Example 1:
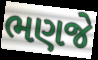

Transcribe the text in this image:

ભણજે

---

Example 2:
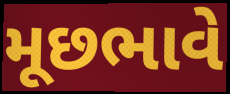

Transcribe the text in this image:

મૂછભાવે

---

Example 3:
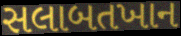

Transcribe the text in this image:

સલાબતખાન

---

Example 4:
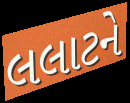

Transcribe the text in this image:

લલાટને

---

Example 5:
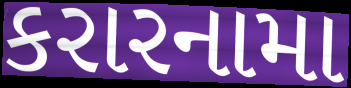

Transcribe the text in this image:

કરારનામા